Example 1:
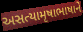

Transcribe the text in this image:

અસત્યામૃષાભાષાને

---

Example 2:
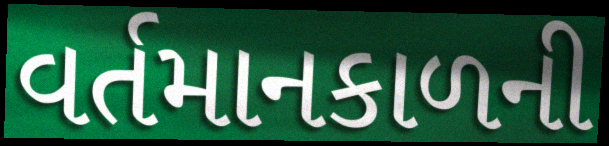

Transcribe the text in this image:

વર્તમાનકાળની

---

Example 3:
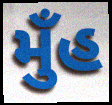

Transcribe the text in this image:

મુઁહ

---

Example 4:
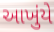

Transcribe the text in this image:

આખુંયે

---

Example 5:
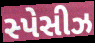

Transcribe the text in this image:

સ્પેસીઝ